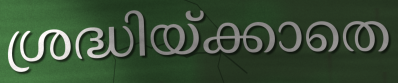
ശ്രദ്ധിയ്ക്കാതെ